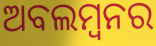
ଅବଲମ୍ବନର